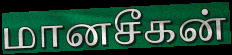
மானசீகன்